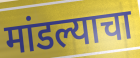
मांडल्याचा